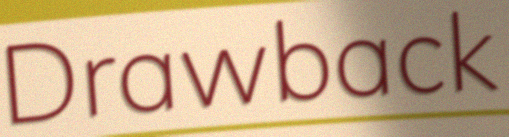
Drawback